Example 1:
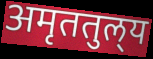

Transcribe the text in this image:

अमृततुल्य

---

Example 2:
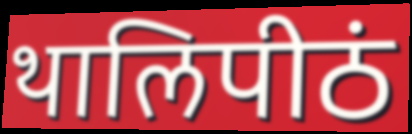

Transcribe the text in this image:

थालिपीठं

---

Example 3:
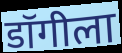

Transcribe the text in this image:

डॉगीला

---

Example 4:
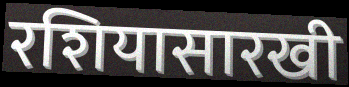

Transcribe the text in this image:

रशियासारखी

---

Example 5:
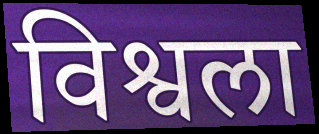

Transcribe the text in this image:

विश्वला